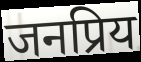
जनप्रिय